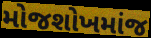
મોજશોખમાંજ